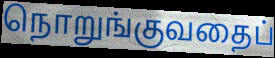
நொறுங்குவதைப்